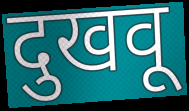
दुखवू